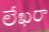
లేఖరా